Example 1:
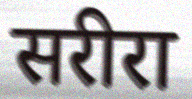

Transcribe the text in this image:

सरीरा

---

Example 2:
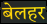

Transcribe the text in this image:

बेलहर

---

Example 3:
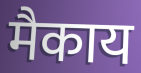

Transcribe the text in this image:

मैकाय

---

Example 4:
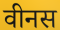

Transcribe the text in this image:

वीनस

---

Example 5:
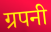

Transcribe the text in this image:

ग्रपनी